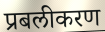
प्रबलीकरण